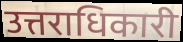
उत्तराधिकारी